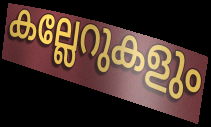
കല്ലേറുകളും